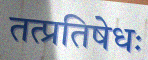
तत्प्रतिषेधः